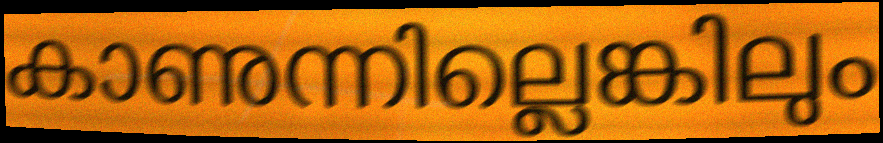
കാണുന്നില്ലെങ്കിലും